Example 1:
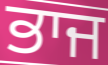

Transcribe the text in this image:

ਭਾਜ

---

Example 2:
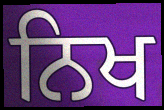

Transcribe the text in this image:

ਨਿਖ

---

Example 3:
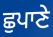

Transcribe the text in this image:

ਛੁਪਾਣੇ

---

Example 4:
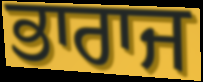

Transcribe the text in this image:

ਭਾਰਾਜ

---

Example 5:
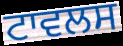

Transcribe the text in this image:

ਟਾਵਲਸ